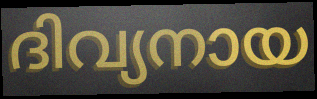
ദിവ്യനായ